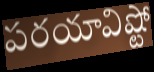
పరయావిష్టో